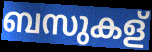
ബസുകള്